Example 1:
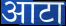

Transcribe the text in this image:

आटा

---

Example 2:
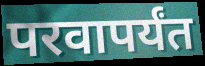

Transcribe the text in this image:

परवापर्यंत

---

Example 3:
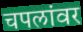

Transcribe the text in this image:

चपलांवर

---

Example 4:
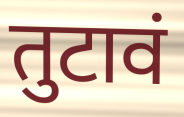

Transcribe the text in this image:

तुटावं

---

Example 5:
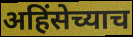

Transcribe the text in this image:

अहिंसेच्याच